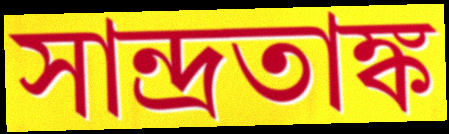
সান্দ্রতাঙ্ক